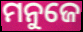
ମନୁଜେ